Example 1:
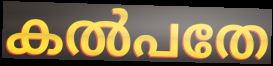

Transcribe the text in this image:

കൽപതേ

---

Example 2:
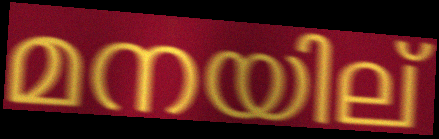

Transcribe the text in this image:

മനയില്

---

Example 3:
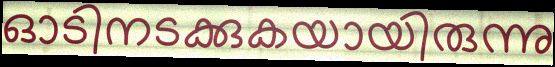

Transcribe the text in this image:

ഓടിനടക്കുകയായിരുന്നു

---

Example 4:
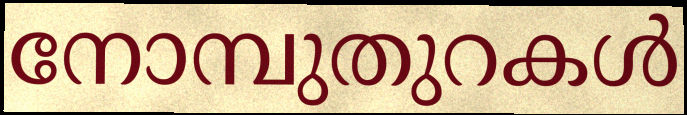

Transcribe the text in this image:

നോമ്പുതുറകൾ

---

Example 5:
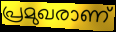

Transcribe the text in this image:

പ്രമുഖരാണ്